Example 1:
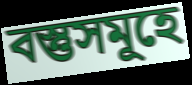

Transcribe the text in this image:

বস্তুসমূহে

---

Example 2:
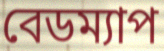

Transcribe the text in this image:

বেডম্যাপ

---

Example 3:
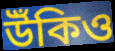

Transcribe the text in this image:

উঁকিও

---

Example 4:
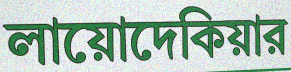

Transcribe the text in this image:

লায়োদেকিয়ার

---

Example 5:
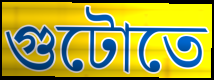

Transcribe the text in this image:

গুটোতে